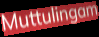
Muttulingam